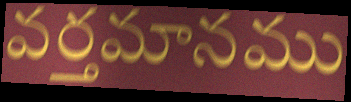
వర్తమానము